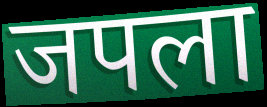
जपला